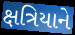
ક્ષત્રિયાને